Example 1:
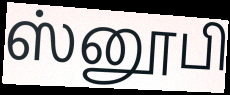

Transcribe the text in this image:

ஸ்னூபி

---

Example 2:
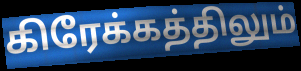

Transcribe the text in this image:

கிரேக்கத்திலும்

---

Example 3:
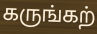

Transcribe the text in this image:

கருங்கற்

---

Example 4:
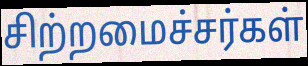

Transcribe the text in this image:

சிற்றமைச்சர்கள்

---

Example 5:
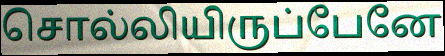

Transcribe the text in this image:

சொல்லியிருப்பேனே